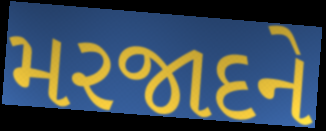
મરજાદને